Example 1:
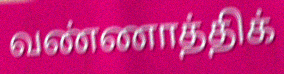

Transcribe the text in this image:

வண்ணாத்திக்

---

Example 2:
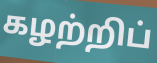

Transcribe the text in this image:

கழற்றிப்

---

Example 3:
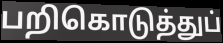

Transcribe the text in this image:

பறிகொடுத்துப்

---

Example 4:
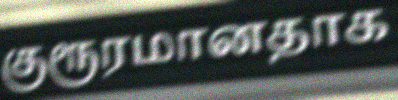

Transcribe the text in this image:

குரூரமானதாக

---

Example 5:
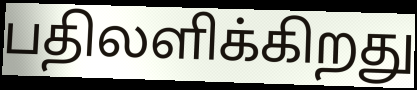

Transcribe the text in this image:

பதிலளிக்கிறது